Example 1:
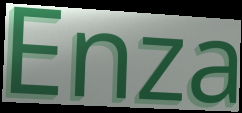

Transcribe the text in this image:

Enza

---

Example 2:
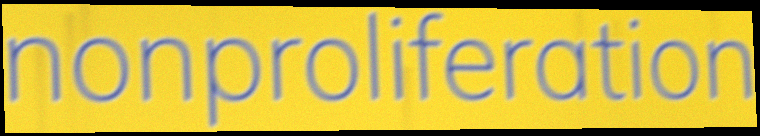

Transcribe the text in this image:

nonproliferation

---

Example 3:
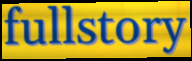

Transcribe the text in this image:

fullstory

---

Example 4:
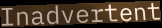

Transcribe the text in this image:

Inadvertent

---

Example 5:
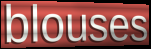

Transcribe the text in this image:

blouses